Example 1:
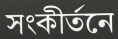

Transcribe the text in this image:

সংকীর্তনে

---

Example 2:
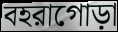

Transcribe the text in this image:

বহরাগোড়া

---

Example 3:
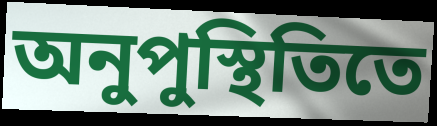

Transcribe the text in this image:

অনুপুস্থিতিতে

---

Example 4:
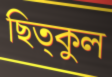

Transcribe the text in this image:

ছিত্কুল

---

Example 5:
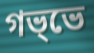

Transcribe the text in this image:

গভ্ভে